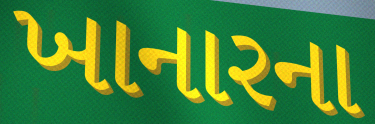
ખાનારના